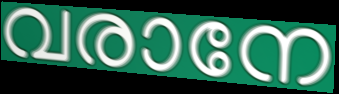
വരാനേ